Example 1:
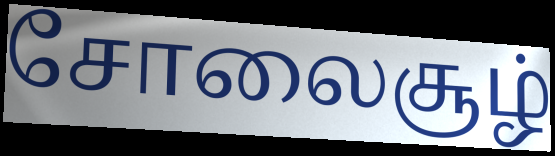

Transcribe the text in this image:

சோலைசூழ்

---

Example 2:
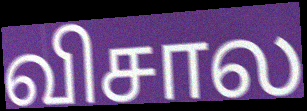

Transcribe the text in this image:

விசால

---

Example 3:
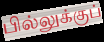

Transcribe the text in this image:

பில்லுக்குப்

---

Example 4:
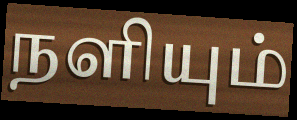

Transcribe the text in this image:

நளியும்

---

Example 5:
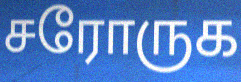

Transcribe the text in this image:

சரோருக